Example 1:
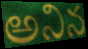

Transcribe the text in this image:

అనిన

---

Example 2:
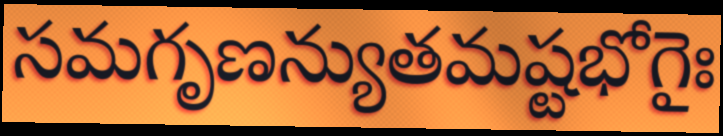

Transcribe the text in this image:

సమగృణన్యుతమష్టభోగైః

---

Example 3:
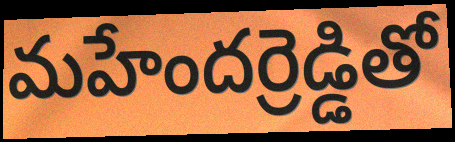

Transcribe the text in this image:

మహేందర్రెడ్డితో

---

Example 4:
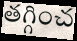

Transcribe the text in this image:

తగ్గించ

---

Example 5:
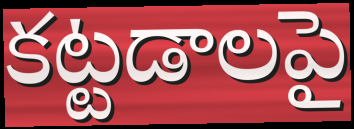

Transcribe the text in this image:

కట్టడాలపై